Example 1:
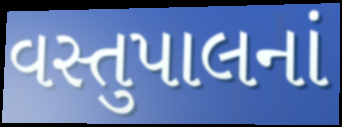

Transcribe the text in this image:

વસ્તુપાલનાં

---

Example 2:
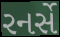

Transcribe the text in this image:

રનર્સે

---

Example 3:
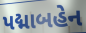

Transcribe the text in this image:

પદ્માબહેન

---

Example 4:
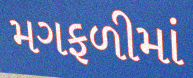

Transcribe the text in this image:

મગફળીમાં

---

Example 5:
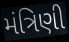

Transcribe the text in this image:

મંત્રિણી